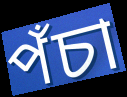
পঁচা